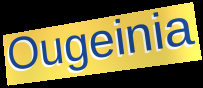
Ougeinia